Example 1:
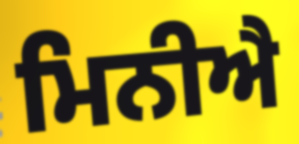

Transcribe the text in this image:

ਮਿਨੀਐ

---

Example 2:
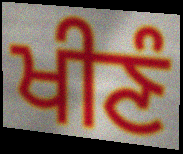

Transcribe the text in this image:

ਖੀਣੰ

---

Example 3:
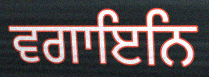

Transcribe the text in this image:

ਵਗਾਇਨਿ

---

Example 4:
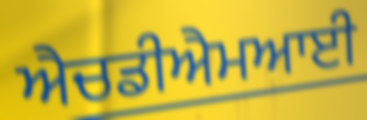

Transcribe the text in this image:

ਐਚਡੀਐਮਆਈ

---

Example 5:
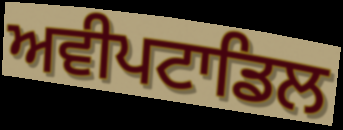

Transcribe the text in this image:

ਅਵੀਪਟਾਡਿਲ